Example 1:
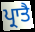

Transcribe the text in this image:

ਪ੍ਰਾਤੈ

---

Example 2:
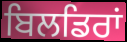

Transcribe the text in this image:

ਬਿਲਡਿਰਾਂ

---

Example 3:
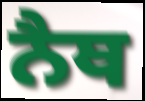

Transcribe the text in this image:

ਨੈਥ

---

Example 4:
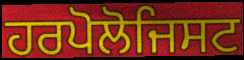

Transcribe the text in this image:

ਹਰਪੋਲੋਜਿਸਟ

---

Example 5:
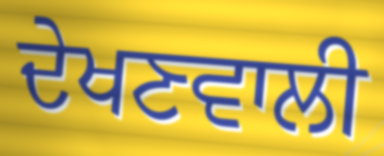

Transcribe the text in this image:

ਦੇਖਣਵਾਲੀ